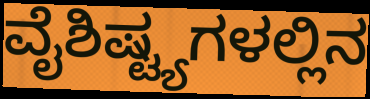
ವೈಶಿಷ್ಟ್ಯಗಳಲ್ಲಿನ